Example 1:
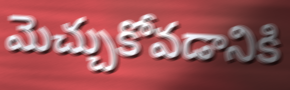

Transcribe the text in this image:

మెచ్చుకోవడానికి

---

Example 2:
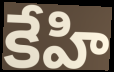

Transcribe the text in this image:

కేహి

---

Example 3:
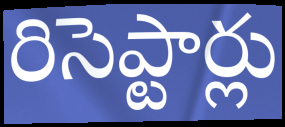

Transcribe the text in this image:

రిసెప్టార్లు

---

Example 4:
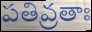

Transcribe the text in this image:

పతివ్రతాః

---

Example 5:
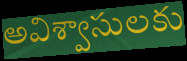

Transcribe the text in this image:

అవిశ్వాసులకు